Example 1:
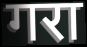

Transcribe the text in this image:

गरा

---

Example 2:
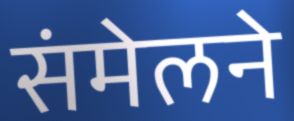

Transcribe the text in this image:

संमेलने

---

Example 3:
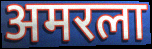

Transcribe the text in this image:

अमरला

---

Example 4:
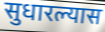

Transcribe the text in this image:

सुधारल्यास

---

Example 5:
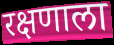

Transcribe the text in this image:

रक्षणाला